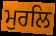
ਮੁਰਲਿ